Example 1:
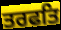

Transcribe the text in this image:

ਤਰਫਤਿ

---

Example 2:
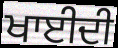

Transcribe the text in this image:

ਖਾਈਦੀ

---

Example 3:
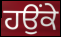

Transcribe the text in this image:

ਹਉਂਕੇ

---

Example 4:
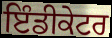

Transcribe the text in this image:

ਇੰਡੀਕੇਟਰ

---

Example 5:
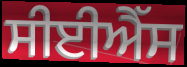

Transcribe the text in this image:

ਸੀਈਐੱਸ